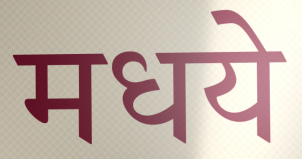
मधये